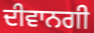
ਦੀਵਾਨਗੀ